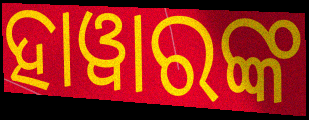
ହାୱାରଙ୍କ